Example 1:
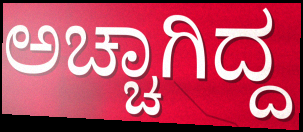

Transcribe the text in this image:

ಅಚ್ಚಾಗಿದ್ದ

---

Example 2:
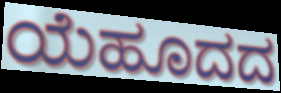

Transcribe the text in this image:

ಯೆಹೂದದ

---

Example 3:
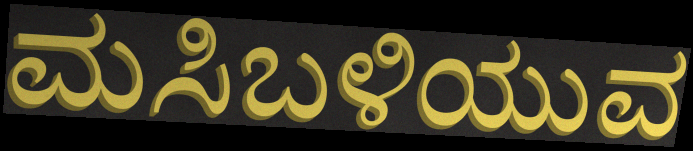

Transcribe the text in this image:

ಮಸಿಬಳಿಯುವ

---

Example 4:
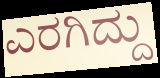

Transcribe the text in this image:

ಎರಗಿದ್ದು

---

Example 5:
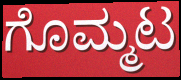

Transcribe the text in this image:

ಗೊಮ್ಮಟ